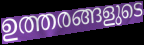
ഉത്തരങ്ങളുടെ